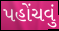
પહોંચવું